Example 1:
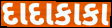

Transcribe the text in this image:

દાદાકાકા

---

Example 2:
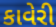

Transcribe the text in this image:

કાવેરી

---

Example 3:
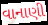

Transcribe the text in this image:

વાનાણી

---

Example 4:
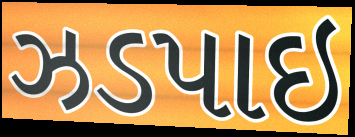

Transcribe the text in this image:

ઝડપાઇ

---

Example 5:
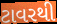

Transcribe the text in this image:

ટાવરથી